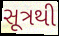
સૂત્રથી